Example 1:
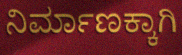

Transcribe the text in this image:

ನಿರ್ಮಾಣಕ್ಕಾಗಿ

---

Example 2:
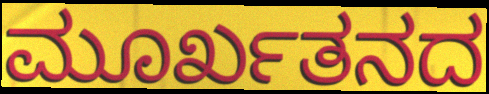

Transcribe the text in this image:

ಮೂರ್ಖತನದ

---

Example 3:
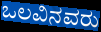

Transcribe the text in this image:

ಒಲವಿನವರು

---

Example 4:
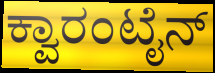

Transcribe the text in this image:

ಕ್ವಾರಂಟೈನ್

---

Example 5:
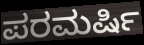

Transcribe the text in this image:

ಪರಮರ್ಷಿ